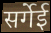
सर्गेई